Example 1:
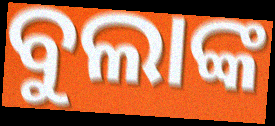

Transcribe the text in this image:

ବୁଲାଙ୍କ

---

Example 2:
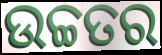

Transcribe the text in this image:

ଉଚ୍ଚତର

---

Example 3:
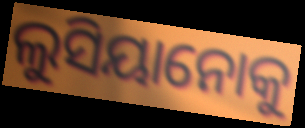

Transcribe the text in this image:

ଲୁସିୟାନୋକୁ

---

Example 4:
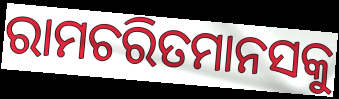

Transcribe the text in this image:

ରାମଚରିତମାନସକୁ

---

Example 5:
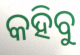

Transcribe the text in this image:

କହିବୁ